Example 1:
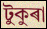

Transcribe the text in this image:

টুকুৰা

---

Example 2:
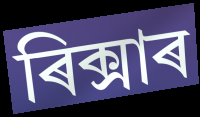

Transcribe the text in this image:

ৰিক্সাৰ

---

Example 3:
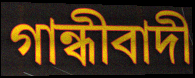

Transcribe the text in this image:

গান্ধীবাদী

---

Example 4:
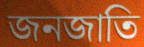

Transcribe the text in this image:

জনজাতি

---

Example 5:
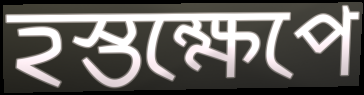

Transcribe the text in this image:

হস্তক্ষেপে